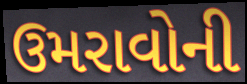
ઉમરાવોની